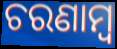
ଚରଣାମ୍ବ